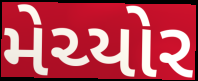
મેચ્યોર